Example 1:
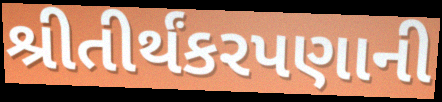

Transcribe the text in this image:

શ્રીતીર્થંકરપણાની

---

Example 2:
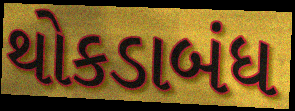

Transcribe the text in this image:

થોકડાબંધ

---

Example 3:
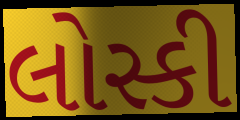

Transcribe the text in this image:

લોસ્કી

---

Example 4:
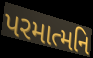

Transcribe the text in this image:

પરમાત્મનિ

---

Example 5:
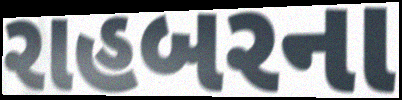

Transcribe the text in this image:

રાહબરના